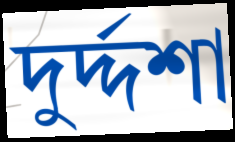
দুর্দ্দশা